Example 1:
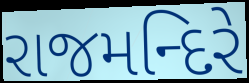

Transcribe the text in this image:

રાજમન્દિરે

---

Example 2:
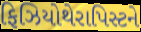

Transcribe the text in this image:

ફિઝિયોથેરાપિસ્ટને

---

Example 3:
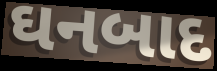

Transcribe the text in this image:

ઘનબાદ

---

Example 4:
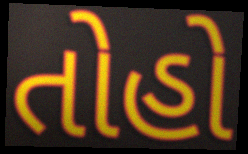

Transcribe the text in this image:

તોહો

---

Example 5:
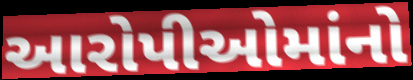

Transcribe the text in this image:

આરોપીઓમાંનો